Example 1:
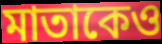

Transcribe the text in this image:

মাতাকেও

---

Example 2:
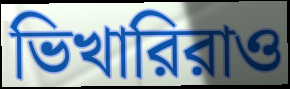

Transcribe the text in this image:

ভিখারিরাও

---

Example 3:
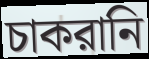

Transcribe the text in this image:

চাকরানি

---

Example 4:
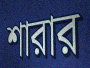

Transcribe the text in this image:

শারার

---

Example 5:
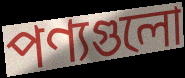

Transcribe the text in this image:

পণ্যগুলো